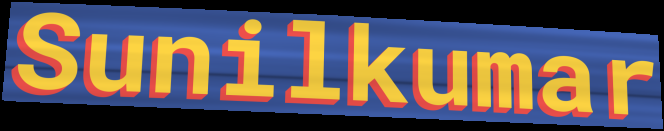
Sunilkumar